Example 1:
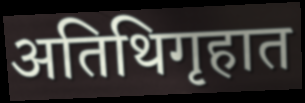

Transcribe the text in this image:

अतिथिगृहात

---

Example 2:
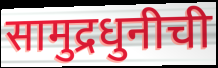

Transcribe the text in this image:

सामुद्रधुनीची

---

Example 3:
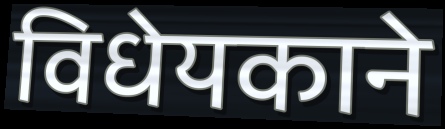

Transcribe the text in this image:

विधेयकाने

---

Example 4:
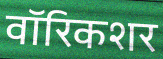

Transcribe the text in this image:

वॉरिकशर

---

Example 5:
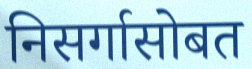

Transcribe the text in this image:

निसर्गासोबत